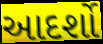
આદર્શો